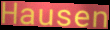
Hausen